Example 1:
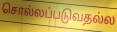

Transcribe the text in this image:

சொல்லப்படுவதல்ல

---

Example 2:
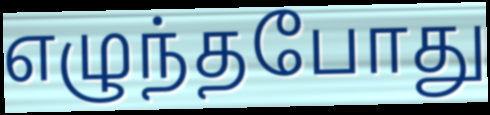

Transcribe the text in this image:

எழுந்தபோது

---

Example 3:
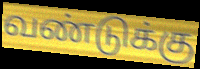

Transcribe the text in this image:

வண்டுக்கு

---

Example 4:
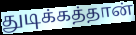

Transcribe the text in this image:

துடிக்கத்தான்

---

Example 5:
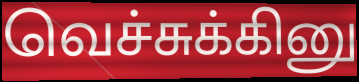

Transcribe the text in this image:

வெச்சுக்கினு